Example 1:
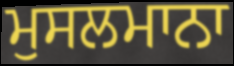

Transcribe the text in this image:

ਮੁਸਲਮਾਨਾ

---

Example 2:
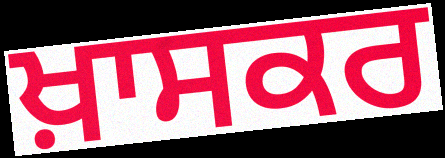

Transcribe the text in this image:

ਖ਼ਾਸਕਰ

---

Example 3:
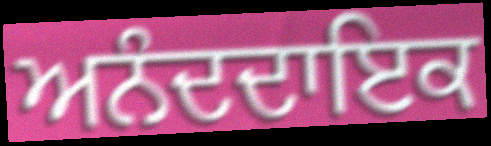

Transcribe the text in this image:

ਅਨੰਦਦਾਇਕ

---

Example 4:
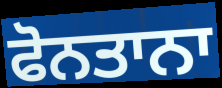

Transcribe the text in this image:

ਫੋਨਤਾਨਾ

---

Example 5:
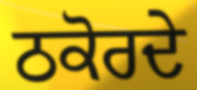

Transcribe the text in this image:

ਠਕੋਰਦੇ